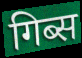
गिब्स